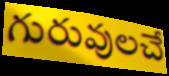
గురువులచే